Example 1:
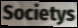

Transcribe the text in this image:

Societys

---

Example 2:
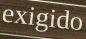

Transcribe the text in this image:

exigido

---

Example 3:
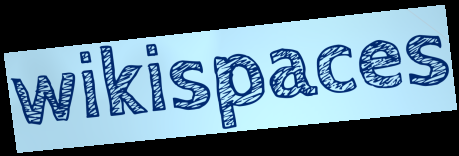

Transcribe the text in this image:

wikispaces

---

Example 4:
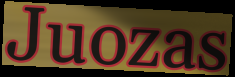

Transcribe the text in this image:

Juozas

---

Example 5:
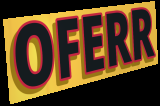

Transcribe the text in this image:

OFERR